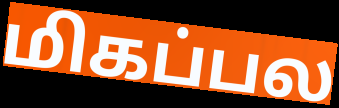
மிகப்பல